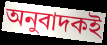
অনুবাদকই